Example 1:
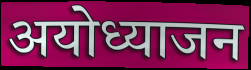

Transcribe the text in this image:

अयोध्याजन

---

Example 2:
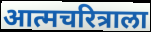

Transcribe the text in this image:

आत्मचरित्राला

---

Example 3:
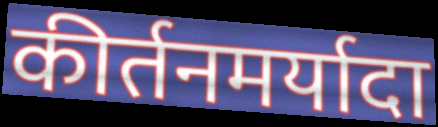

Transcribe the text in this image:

कीर्तनमर्यादा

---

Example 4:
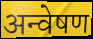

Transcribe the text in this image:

अन्वेषण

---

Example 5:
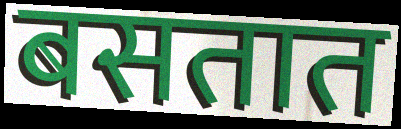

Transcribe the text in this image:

बसतात